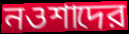
নওশাদের